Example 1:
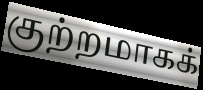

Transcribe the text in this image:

குற்றமாகக்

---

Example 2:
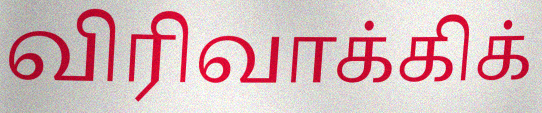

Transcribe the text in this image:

விரிவாக்கிக்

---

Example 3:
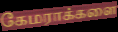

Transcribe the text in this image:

கேமராக்களை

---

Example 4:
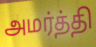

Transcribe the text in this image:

அமர்த்தி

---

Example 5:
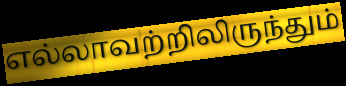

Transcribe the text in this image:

எல்லாவற்றிலிருந்தும்